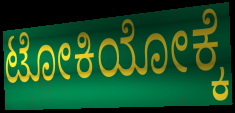
ಟೋಕಿಯೋಕ್ಕೆ